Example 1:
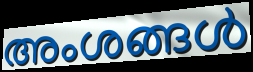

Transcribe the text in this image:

അംശങ്ങൾ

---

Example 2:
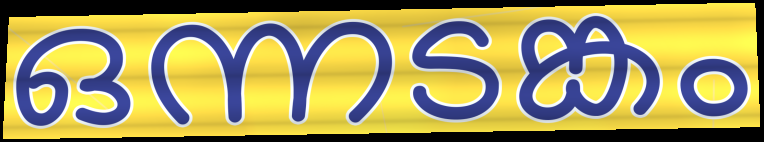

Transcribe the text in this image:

ഒന്നടങ്കം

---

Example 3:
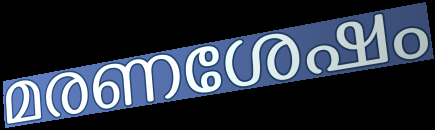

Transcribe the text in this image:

മരണശേഷം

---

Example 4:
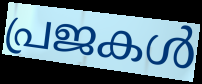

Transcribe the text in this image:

പ്രജകൾ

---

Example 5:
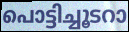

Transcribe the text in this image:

പൊട്ടിച്ചൂടറാ